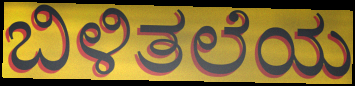
ಬಿಳಿತಲೆಯ